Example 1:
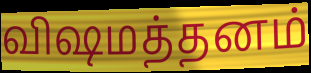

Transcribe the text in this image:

விஷமத்தனம்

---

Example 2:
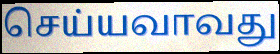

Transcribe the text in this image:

செய்யவாவது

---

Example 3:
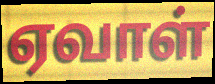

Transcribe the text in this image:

ஏவாள்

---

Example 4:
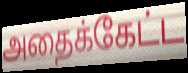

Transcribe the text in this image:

அதைக்கேட்ட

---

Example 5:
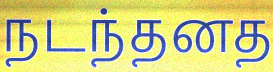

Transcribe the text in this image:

நடந்தனத